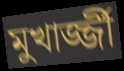
মুখার্জ্জী